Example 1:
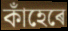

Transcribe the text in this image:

কাঁহেৰে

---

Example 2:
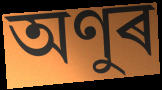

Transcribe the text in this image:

অণুৰ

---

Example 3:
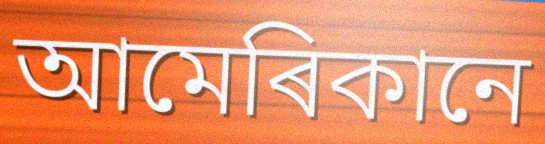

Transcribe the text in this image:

আমেৰিকানে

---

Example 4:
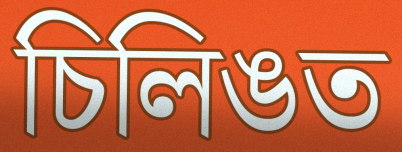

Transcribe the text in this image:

চিলিঙত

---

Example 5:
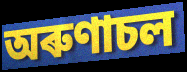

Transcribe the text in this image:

অৰুণাচল